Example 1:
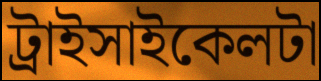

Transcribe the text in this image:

ট্রাইসাইকেলটা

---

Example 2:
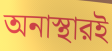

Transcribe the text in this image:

অনাস্থারই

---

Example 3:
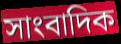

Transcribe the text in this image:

সাংবাদিক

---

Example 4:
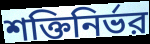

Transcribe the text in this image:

শক্তিনির্ভর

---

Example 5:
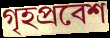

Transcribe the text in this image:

গৃহপ্রবেশ